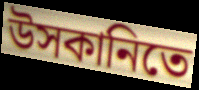
উসকানিতে